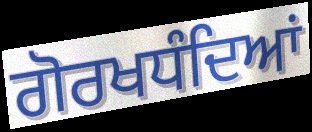
ਗੋਰਖਧੰਦਿਆਂ